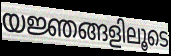
യജ്ഞങ്ങളിലൂടെ